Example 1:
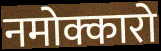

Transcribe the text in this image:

नमोक्कारो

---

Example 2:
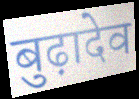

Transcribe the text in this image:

बुढ़ादेव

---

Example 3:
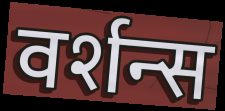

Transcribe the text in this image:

वर्शन्स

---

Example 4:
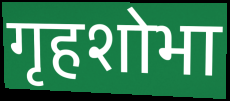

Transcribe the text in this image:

गृहशोभा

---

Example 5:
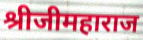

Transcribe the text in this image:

श्रीजीमहाराज